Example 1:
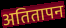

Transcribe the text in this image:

अतितापन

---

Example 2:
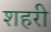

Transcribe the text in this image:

शहरी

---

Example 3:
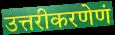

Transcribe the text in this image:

उत्तरीकरणेणं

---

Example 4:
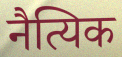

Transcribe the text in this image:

नैत्यिक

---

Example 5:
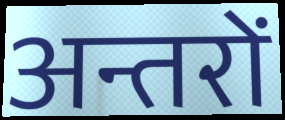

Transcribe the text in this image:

अन्तरों